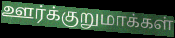
ஊர்க்குறுமாக்கள்